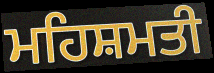
ਮਹਿਸ਼ਮਤੀ